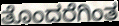
ತೊಂದರೆಗಿಂತ